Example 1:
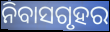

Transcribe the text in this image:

ନିବାସଗୃହର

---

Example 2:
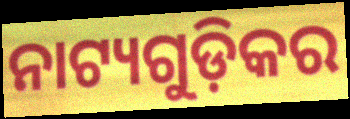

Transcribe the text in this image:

ନାଟ୍ୟଗୁଡ଼ିକର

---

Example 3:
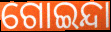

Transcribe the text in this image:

ଗୋଇନ୍ଦା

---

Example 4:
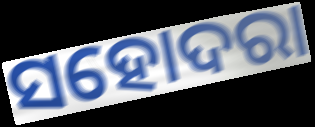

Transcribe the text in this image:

ସହୋଦରା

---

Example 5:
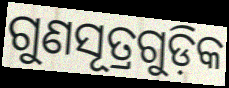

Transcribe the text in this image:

ଗୁଣସୂତ୍ରଗୁଡ଼ିକ